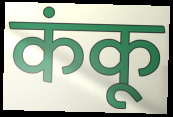
कंकू